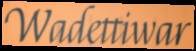
Wadettiwar